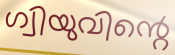
ഗ്വിയുവിന്റെ